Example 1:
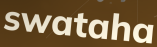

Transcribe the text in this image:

swataha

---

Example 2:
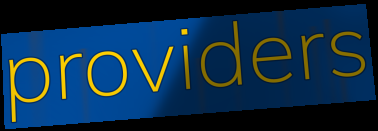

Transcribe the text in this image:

providers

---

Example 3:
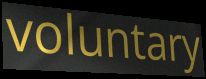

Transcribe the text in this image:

voluntary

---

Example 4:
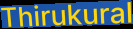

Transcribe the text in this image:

Thirukural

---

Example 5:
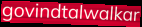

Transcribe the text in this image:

govindtalwalkar